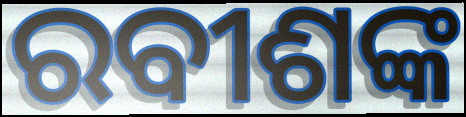
ରବୀଶଙ୍କ